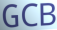
GCB